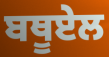
ਬਥੂਏਲ